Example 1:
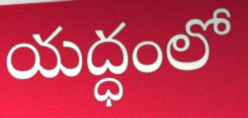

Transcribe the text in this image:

యద్ధంలో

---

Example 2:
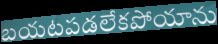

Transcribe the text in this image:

బయటపడలేకపోయాను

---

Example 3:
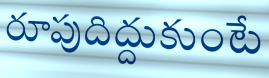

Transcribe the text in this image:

రూపుదిద్దుకుంటే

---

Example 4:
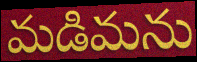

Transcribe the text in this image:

మడిమను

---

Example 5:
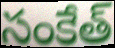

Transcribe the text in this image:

సంకేత్